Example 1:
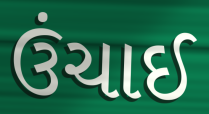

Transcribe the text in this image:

ઉંચાઈ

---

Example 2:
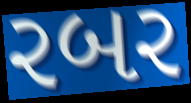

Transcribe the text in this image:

રબર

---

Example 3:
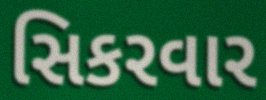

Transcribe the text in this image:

સિકરવાર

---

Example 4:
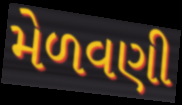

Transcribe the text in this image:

મેળવણી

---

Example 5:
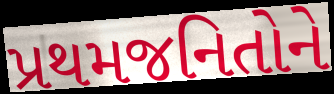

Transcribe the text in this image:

પ્રથમજનિતોને